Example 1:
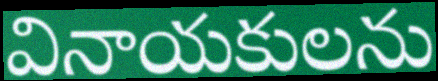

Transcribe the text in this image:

వినాయకులను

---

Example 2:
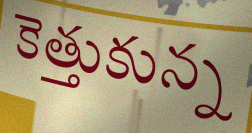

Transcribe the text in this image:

కెత్తుకున్న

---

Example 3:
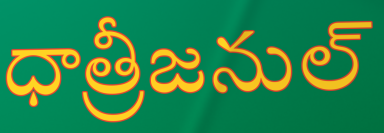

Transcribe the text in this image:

ధాత్రీజనుల్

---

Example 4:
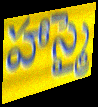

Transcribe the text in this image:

హాస్మై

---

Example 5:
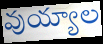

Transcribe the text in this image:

వుయ్యాల